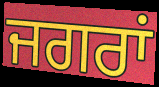
ਜਗਰਾਂ